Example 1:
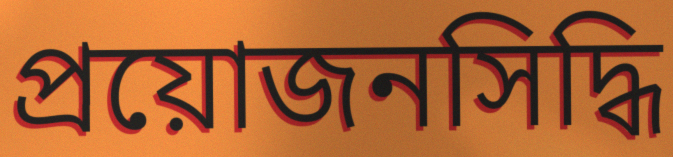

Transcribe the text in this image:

প্রয়োজনসিদ্ধি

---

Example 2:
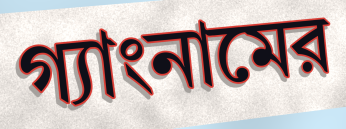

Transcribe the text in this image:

গ্যাংনামের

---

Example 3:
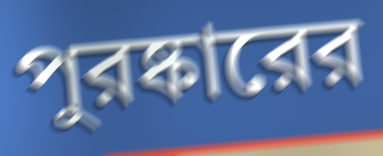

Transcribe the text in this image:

পুরষ্কারের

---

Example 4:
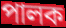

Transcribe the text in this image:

পালক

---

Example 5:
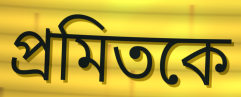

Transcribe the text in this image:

প্রমিতকে